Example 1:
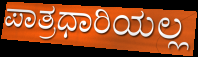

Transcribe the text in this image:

ಪಾತ್ರಧಾರಿಯಲ್ಲ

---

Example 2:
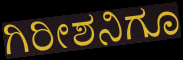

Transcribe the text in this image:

ಗಿರೀಶನಿಗೂ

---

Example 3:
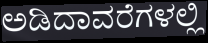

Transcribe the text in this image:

ಅಡಿದಾವರೆಗಳಲ್ಲಿ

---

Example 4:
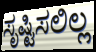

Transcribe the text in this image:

ಸೃಷ್ಟಿಸಲಿಲ್ಲ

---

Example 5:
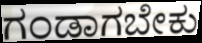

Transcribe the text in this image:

ಗಂಡಾಗಬೇಕು